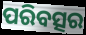
ପରିବତ୍ସର